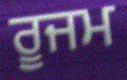
ਰੂਜਮ